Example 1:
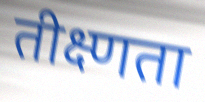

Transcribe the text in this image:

तीक्ष्णता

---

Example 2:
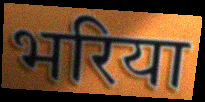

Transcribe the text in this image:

भरिया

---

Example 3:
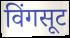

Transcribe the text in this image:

विंगसूट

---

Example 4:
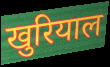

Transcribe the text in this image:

खुरियाल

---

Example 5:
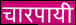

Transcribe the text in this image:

चारपायी